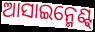
ଆସାଇନ୍ମେଣ୍ଟ୍